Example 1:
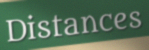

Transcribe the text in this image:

Distances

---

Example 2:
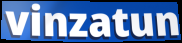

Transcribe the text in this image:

vinzatun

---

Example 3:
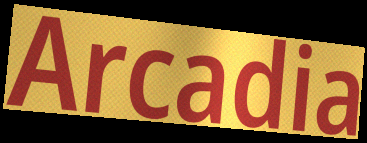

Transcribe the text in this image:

Arcadia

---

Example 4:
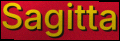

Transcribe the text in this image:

Sagitta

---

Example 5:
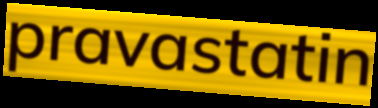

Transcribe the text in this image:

pravastatin